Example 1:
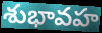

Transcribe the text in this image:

శుభావహ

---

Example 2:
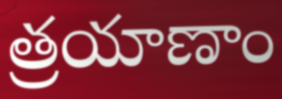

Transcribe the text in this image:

త్రయాణాం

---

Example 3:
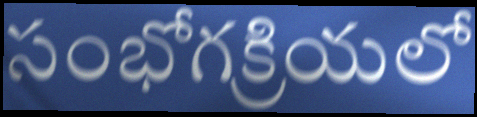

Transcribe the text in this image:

సంభోగక్రియలో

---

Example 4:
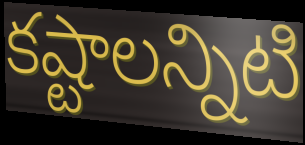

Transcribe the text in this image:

కష్టాలన్నిటి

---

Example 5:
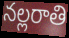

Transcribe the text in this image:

నల్లరాతి